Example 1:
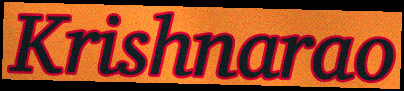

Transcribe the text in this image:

Krishnarao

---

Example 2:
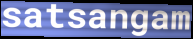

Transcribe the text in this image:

satsangam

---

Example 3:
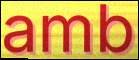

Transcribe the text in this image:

amb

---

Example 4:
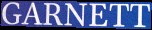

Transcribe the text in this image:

GARNETT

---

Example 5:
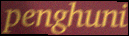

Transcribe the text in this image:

penghuni